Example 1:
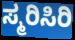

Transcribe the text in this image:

ಸ್ಮರಿಸಿರಿ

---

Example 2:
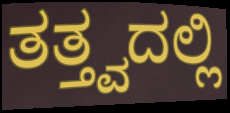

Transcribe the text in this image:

ತತ್ತ್ವದಲ್ಲಿ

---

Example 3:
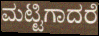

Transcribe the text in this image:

ಮಟ್ಟಿಗಾದರೆ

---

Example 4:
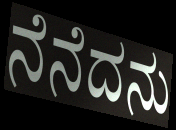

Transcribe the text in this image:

ನೆನೆದನು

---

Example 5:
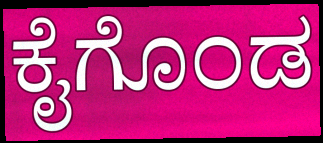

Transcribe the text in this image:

ಕೈಗೊಂಡ